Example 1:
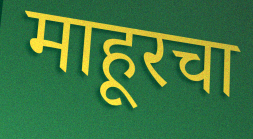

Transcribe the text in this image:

माहूरचा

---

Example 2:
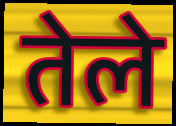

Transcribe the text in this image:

तेले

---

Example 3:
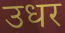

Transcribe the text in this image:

उधर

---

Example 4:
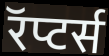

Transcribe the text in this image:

रॅप्टर्स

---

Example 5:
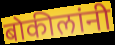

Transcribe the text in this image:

बोकीलांनी